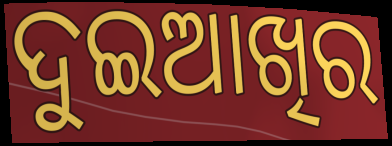
ଦୁଇଆଖିର